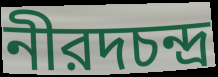
নীরদচন্দ্র